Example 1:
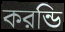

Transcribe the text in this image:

করন্ডি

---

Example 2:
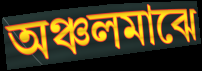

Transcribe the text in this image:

অঞ্চলমাঝে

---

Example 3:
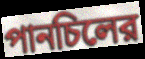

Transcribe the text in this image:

পানচিলের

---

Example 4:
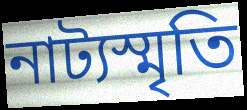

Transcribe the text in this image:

নাট্যস্মৃতি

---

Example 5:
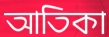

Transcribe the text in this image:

আতিকা